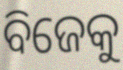
ବିଜେକୁ